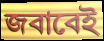
জবাবেই